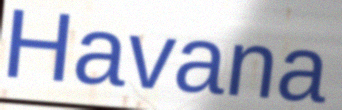
Havana